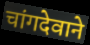
चांगदेवाने